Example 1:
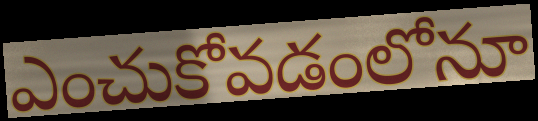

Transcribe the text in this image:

ఎంచుకోవడంలోనూ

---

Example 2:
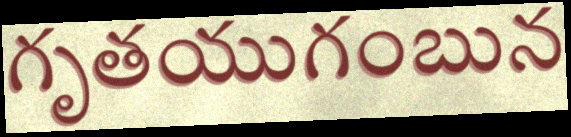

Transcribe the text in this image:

గృతయుగంబున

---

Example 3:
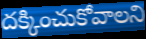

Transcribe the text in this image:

దక్కించుకోవాలని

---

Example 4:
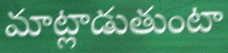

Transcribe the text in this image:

మాట్లాడుతుంటా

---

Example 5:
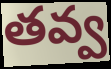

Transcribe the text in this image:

తవ్వ